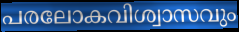
പരലോകവിശ്വാസവും